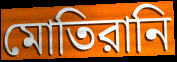
মোতিরানি